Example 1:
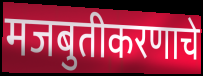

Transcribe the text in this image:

मजबुतीकरणाचे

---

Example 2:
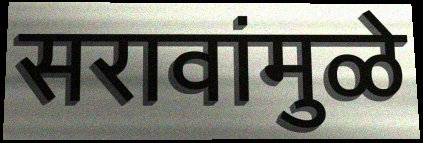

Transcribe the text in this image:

सरावांमुळे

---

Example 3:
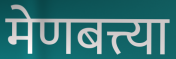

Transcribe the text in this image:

मेणबत्त्या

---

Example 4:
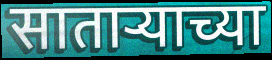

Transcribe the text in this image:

साताऱ्याच्या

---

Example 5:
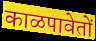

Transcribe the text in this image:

काळपावेतों